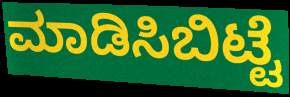
ಮಾಡಿಸಿಬಿಟ್ಟೆ